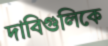
দাবিগুলিকে